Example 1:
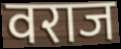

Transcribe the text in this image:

वराज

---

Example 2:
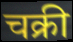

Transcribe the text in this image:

चक्री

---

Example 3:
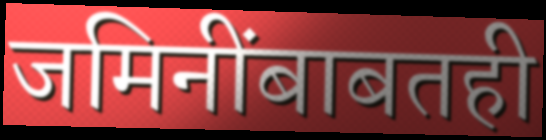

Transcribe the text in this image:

जमिनींबाबतही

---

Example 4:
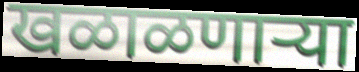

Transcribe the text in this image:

खळाळणाऱ्या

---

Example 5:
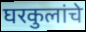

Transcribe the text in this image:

घरकुलांचे